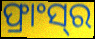
ଫ୍ରାଂସ୍‍ର